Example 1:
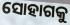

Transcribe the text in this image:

ସୋହାଗକୁ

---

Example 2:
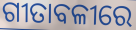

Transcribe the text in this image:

ଗୀତାବଳୀରେ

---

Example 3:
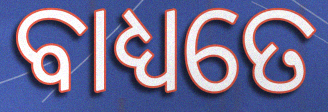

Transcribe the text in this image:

ବାଧ୍ଯତେ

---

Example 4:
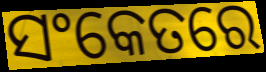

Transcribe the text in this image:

ସଂକେତରେ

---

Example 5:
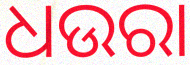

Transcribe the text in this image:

ଧଉରା